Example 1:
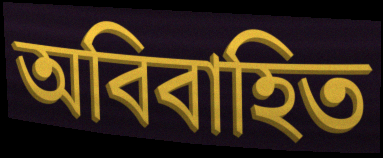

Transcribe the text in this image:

অবিবাহিত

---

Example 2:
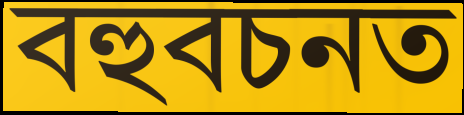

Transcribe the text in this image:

বহুবচনত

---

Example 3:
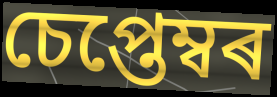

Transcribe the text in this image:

চেপ্তেম্বৰ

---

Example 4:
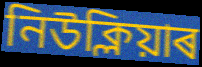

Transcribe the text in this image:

নিউক্লিয়াৰ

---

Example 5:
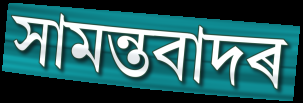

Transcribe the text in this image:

সামন্তবাদৰ